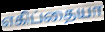
எகிப்தையா